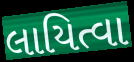
લાયિત્વા